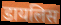
डायलिस